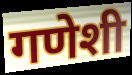
गणेशी